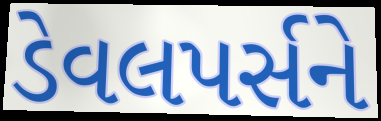
ડેવલપર્સને